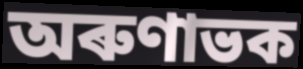
অৰুণাভক